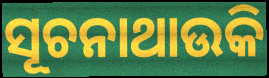
ସୂଚନାଥାଉକି